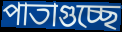
পাতাগুচ্ছে